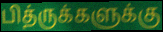
பித்ருக்களுக்கு